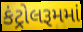
કંટ્રોલરૂમમાં